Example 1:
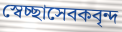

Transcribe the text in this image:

স্বেচ্ছাসেবকবৃন্দ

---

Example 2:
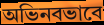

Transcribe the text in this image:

অভিনবভাবে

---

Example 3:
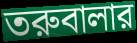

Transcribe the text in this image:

তরুবালার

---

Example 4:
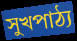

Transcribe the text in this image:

সুখপাঠ্য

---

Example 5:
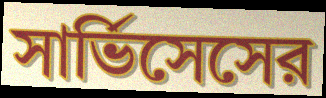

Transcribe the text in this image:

সার্ভিসেসের